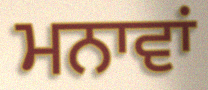
ਮਨਾਵਾਂ